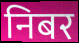
निबर